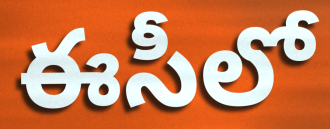
ఈసీలో